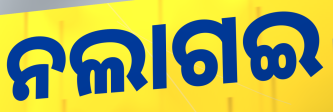
ନଲାଗଇ